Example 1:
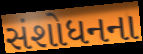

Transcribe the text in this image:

સંશોધનના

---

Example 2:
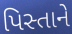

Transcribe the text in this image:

પિસ્તાને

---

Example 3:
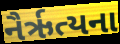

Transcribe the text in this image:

નૈર્ઋત્યના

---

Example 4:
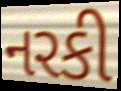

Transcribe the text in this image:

નરકી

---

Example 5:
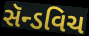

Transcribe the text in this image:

સૅન્ડવિચ